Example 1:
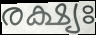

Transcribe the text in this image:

രക്ഷ്യഃ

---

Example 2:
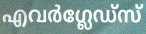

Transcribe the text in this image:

എവർഗ്ലേഡ്സ്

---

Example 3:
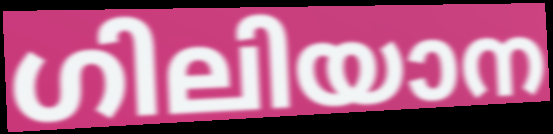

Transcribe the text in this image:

ഗിലിയാന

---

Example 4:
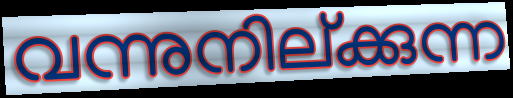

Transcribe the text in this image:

വന്നുനില്ക്കുന്ന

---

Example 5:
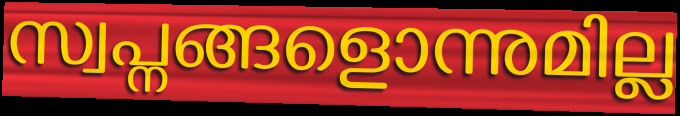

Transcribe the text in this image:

സ്വപ്നങ്ങളൊന്നുമില്ല